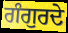
ਗੰਗੁਰਦੇ